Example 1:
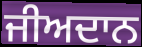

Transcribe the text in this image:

ਜੀਅਦਾਨ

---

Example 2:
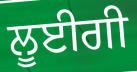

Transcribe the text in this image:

ਲੂਈਗੀ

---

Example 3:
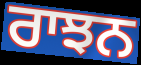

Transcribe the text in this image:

ਰਾਝਨ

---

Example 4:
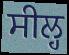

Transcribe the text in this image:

ਸੀਲ੍ਹ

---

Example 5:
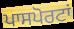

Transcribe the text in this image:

ਪਾਸਪੋਰਟਾਂ